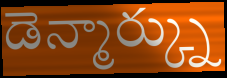
డెన్మార్క్ను